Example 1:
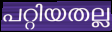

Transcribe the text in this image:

പറ്റിയതല്ല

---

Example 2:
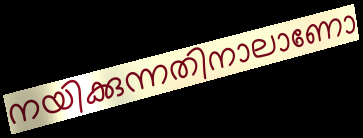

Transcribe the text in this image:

നയിക്കുന്നതിനാലാണോ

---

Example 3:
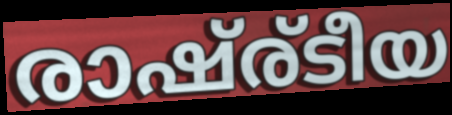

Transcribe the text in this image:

രാഷ്ര്ടീയ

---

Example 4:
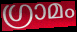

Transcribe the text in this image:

ഗ്രാമം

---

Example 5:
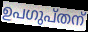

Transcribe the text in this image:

ഉപഗുപ്തന്